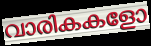
വാരികകളോ